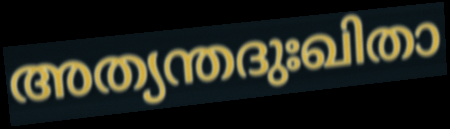
അത്യന്തദുഃഖിതാ